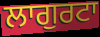
ਲਾਗੁਰਟਾ